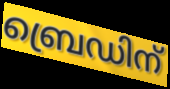
ബ്രെഡിന്